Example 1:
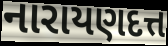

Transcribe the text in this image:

નારાયણદત્ત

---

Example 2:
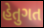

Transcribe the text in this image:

હેતુગત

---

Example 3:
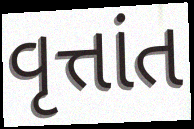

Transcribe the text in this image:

વૃત્તાંત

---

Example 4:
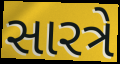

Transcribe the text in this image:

સારત્રે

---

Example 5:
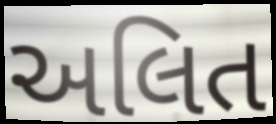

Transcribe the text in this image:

અલિત